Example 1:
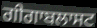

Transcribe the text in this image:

ਗੀਗਾਬਲਾਸਟ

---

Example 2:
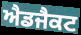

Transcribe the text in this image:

ਐਡਜੈਕਟ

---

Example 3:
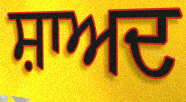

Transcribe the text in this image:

ਸ਼ਾਅਦ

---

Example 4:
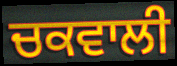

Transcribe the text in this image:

ਚਕਵਾਲੀ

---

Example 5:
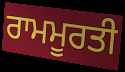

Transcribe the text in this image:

ਰਾਮਮੂਰਤੀ